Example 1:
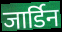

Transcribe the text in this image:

जार्डिन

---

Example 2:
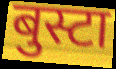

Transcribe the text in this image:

बुस्टा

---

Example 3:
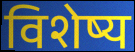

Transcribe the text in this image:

विशेष्य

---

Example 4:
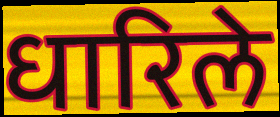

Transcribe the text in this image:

धारिले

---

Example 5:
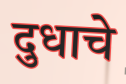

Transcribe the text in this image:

दुधाचे